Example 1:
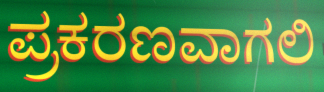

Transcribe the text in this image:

ಪ್ರಕರಣವಾಗಲಿ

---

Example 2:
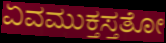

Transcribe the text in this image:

ಏವಮುಕ್ತಸ್ತತೋ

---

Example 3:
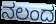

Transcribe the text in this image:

ನಲಂದ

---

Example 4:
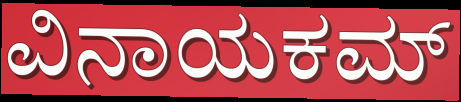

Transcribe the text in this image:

ವಿನಾಯಕಮ್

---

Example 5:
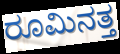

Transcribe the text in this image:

ರೂಮಿನತ್ತ